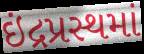
ઇંદ્રપ્રસ્થમાં